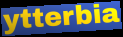
ytterbia